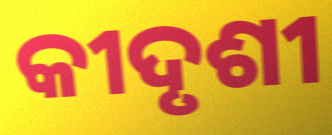
କୀଦୃଶୀ